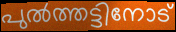
പുൽത്തട്ടിനോട്